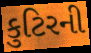
કુટિરની